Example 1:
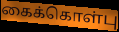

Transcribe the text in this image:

கைக்கொள்பு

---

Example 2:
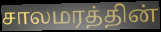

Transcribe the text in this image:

சாலமரத்தின்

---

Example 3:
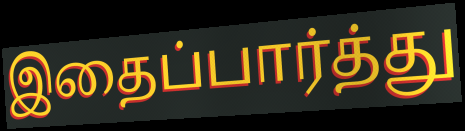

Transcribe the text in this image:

இதைப்பார்த்து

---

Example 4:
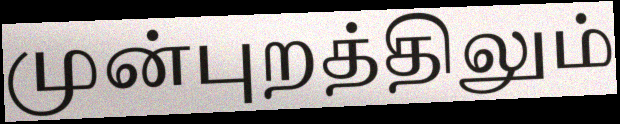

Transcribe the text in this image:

முன்புறத்திலும்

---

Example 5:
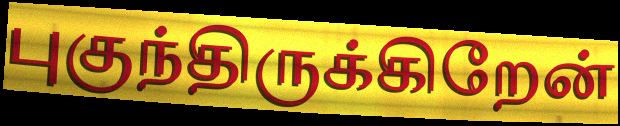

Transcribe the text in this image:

புகுந்திருக்கிறேன்